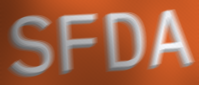
SFDA